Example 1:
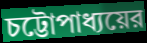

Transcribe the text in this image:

চট্টোপাধ্যয়ের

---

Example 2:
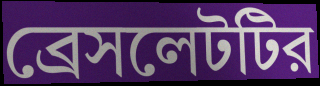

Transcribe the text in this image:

ব্রেসলেটটির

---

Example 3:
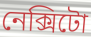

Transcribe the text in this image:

নেক্সিটো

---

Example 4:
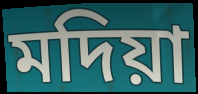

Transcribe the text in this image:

মদিয়া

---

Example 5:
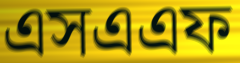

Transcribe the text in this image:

এসএএফ